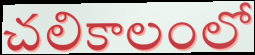
చలికాలంలో